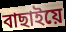
বাছাইয়ে